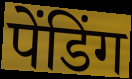
पेंडिंग